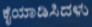
ಕೈಯಾಡಿಸಿದಳು